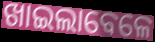
ଖାଇଲାବେଳେ